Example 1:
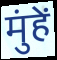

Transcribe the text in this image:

मुंहें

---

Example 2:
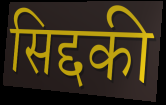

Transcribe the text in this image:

सिद्दकी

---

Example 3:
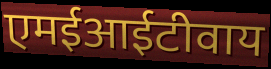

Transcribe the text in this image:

एमईआईटीवाय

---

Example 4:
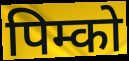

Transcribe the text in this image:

पिम्को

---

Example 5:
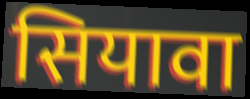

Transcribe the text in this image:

सियावा